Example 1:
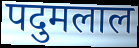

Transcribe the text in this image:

पदुमलाल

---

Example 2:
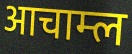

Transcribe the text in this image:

आचाम्ल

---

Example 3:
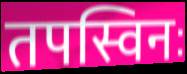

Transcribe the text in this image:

तपस्विनः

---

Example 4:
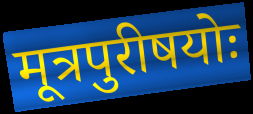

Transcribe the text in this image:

मूत्रपुरीषयोः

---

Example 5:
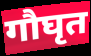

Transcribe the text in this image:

गौघृत